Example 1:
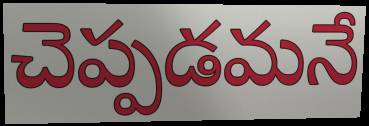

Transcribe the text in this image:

చెప్పడమనే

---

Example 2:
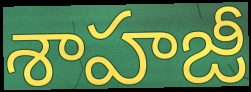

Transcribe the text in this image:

శాహజీ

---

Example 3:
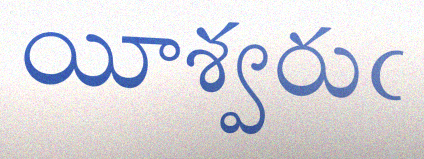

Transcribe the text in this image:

యీశ్వరుఁ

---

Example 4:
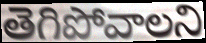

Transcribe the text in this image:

తెగిపోవాలని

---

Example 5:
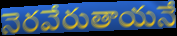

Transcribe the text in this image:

నెరవేరుతాయనే